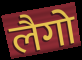
लैगो